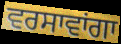
ਵਰਸਾਵਾਂਗਾ